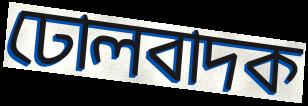
ঢোলবাদক